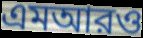
এমআরও